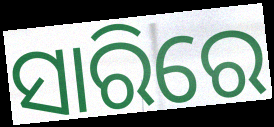
ସାରିରେ